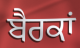
ਬੈਰਕਾਂ